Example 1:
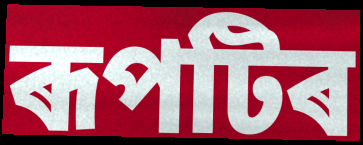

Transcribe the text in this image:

ৰূপটিৰ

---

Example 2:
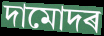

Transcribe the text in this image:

দামোদৰ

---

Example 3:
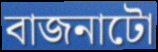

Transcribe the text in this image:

বাজনাটো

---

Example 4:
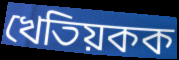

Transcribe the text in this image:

খেতিয়কক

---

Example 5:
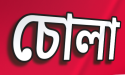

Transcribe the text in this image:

চোলা